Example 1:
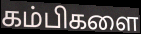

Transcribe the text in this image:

கம்பிகளை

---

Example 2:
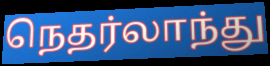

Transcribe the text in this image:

நெதர்லாந்து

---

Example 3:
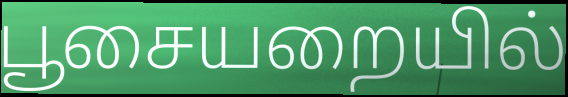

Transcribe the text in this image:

பூசையறையில்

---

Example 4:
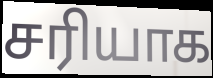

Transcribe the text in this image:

சரியாக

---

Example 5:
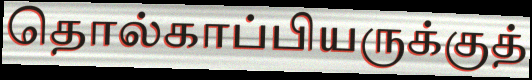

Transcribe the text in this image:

தொல்காப்பியருக்குத்